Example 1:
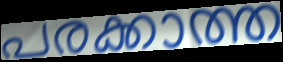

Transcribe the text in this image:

പരക്കാത്ത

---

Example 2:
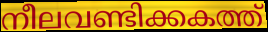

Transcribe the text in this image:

നീലവണ്ടിക്കകത്ത്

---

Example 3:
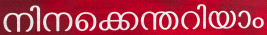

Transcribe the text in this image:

നിനക്കെന്തറിയാം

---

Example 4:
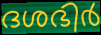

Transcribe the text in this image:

ദശഭിർ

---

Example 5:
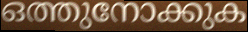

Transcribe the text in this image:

ഒത്തുനോക്കുക